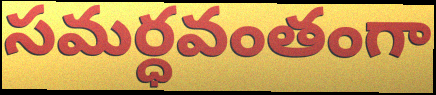
సమర్ధవంతంగా